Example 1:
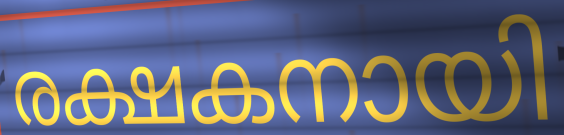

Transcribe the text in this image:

രക്ഷകനായി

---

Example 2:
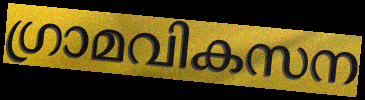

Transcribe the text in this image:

ഗ്രാമവികസന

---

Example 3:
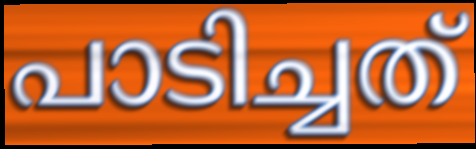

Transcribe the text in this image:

പാടിച്ചത്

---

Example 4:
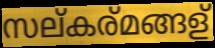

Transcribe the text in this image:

സല്കര്മങ്ങള്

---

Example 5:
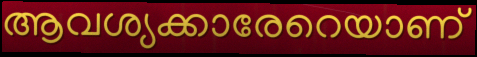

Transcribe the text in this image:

ആവശ്യക്കാരേറെയാണ്